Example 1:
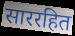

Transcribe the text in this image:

साररहित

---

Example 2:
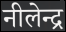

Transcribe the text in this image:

नीलेन्द्र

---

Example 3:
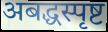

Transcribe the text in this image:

अबद्धस्पृष्ट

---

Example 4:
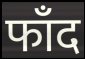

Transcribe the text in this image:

फाँद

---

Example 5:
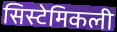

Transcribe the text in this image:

सिस्टेमिकली